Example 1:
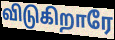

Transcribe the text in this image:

விடுகிறாரே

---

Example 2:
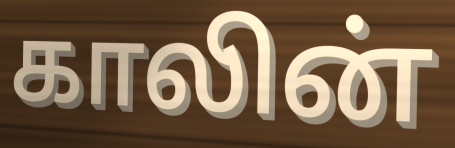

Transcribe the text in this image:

காலின்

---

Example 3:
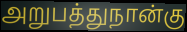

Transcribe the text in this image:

அறுபத்துநான்கு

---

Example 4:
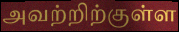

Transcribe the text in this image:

அவற்றிற்குள்ள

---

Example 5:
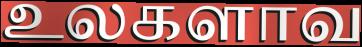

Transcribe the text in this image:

உலகளாவ